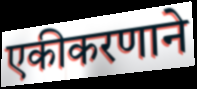
एकीकरणाने